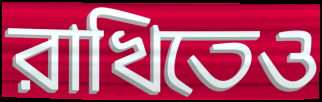
রাখিতেও